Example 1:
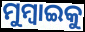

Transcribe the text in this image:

ମୁମ୍ୱାଇକୁ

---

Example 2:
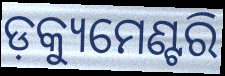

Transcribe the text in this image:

ଡ଼କ୍ୟୁମେଣ୍ଟରି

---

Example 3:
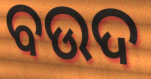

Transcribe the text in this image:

ବଉଦ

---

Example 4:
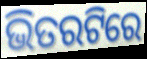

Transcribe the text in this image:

ଭିତରଟିରେ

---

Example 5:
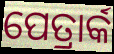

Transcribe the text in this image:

ପେତ୍ରାର୍କ